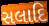
સલાદિ